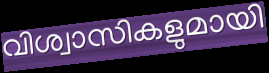
വിശ്വാസികളുമായി